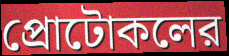
প্রোটোকলের